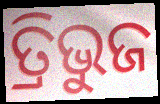
ତ୍ରିଭୁଜ